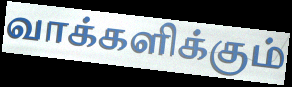
வாக்களிக்கும்